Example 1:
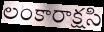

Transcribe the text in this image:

లంకారాక్షసి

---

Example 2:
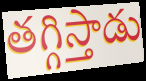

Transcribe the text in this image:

తగ్గిస్తాడు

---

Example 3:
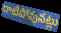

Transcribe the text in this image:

దాటిపోవునట్లు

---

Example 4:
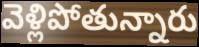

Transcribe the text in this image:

వెళ్లిపోతున్నారు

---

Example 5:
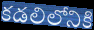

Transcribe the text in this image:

కడలిలోనికి